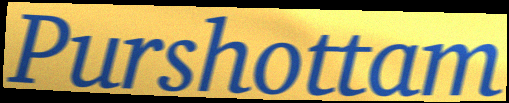
Purshottam